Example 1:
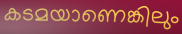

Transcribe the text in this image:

കടമയാണെങ്കിലും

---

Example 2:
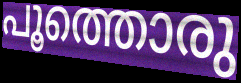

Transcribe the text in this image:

പൂത്തൊരു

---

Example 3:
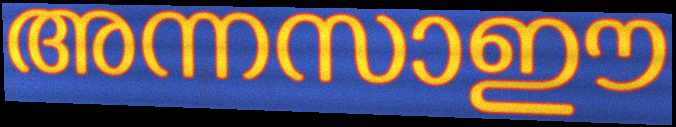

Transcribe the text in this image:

അന്നസാഈ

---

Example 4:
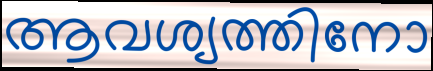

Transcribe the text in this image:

ആവശ്യത്തിനോ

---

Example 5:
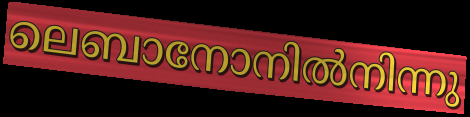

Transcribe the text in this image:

ലെബാനോനിൽനിന്നു